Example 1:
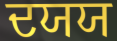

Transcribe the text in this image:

ਦਯਯ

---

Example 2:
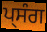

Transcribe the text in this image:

ਪ੍ਸੰਗ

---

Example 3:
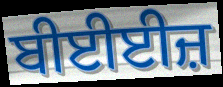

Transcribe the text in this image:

ਬੀਈਈਜ਼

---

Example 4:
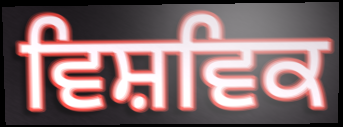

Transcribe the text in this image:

ਵਿਸ਼ਵਿਕ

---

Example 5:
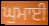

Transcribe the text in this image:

ਘੁਮਾਈ